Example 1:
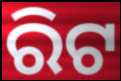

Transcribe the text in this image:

ରିଟ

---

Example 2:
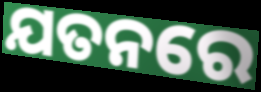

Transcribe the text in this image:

ଯତନରେ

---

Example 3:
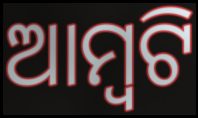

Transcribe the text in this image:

ଆମ୍ୱଟି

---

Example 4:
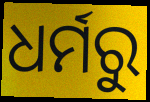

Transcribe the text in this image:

ଧର୍ମରୁ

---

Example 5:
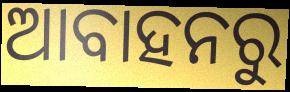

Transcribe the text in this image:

ଆବାହନରୁ